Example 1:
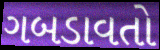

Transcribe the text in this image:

ગબડાવતો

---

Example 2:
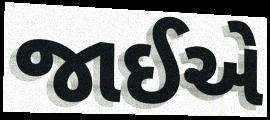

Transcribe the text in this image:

જાઈએ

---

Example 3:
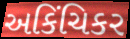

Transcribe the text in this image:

અકિંચિકર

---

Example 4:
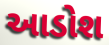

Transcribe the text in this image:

આડોશ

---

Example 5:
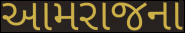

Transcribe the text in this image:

આમરાજના